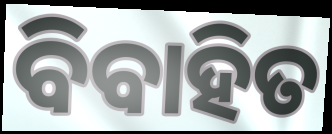
ବିବାହିତ